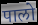
पालो